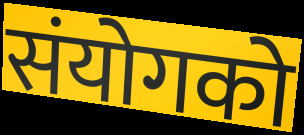
संयोगको